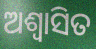
ଅଶ୍ୱାସିତ